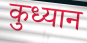
कुध्यान